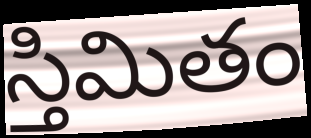
స్తిమితం